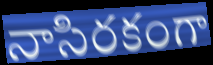
నాసిరకంగా